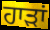
ਹਾੜਾਂ